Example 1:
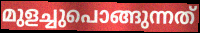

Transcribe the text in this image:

മുളച്ചുപൊങ്ങുന്നത്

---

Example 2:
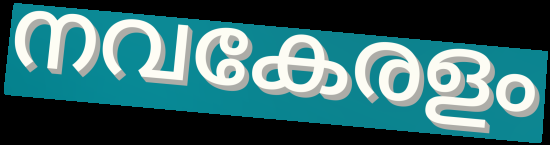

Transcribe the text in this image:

നവകേരളം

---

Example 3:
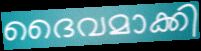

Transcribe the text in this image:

ദൈവമാക്കി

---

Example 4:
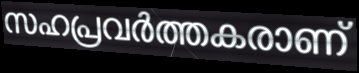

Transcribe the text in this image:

സഹപ്രവർത്തകരാണ്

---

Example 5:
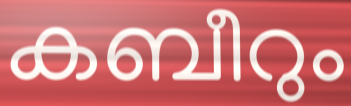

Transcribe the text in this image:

കബീറും